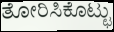
ತೋರಿಸಿಕೊಟ್ಟು